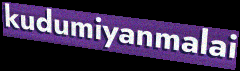
kudumiyanmalai